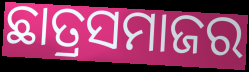
ଛାତ୍ରସମାଜର